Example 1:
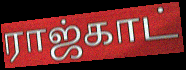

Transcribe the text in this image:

ராஜ்காட்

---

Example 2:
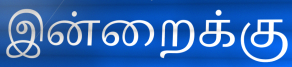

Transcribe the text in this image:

இன்றைக்கு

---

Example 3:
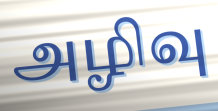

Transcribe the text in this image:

அழிவு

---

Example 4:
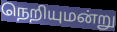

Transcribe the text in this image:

நெறியுமன்று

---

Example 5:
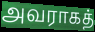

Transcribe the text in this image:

அவராகத்